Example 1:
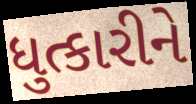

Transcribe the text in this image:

ધુત્કારીને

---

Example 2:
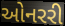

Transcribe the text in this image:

ઓનરરી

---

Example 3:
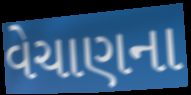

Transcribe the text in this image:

વેચાણના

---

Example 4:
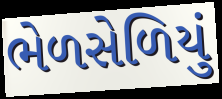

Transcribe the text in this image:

ભેળસેળિયું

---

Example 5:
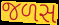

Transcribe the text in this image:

જળસ